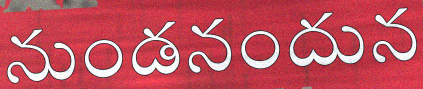
నుండనందున